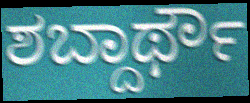
ಶಬ್ದಾರ್ಥೌ